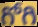
గోగి